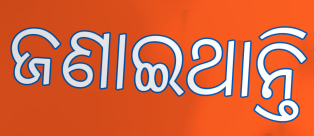
ଜଣାଇଥାନ୍ତି